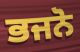
ਭਜਨੋ